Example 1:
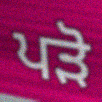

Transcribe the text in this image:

ਪੜੋ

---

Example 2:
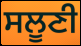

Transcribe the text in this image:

ਸਲੂਣੀ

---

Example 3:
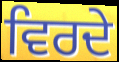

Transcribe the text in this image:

ਵਿਰਦੇ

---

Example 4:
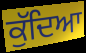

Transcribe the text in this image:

ਕੁੱਦਿਆ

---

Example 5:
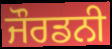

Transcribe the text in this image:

ਜੌਰਡਨੀ